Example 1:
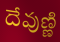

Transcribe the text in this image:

దేవుణ్ణి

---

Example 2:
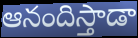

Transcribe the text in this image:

ఆనందిస్తాడా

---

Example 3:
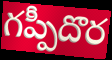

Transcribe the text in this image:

గప్పీదొర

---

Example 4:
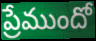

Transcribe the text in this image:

ప్రేముందో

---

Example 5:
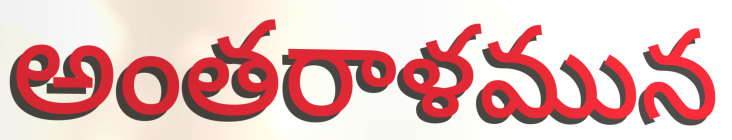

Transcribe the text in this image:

అంతరాళమున